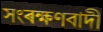
সংৰক্ষণবাদী